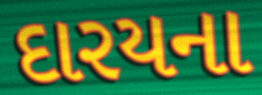
દારયના